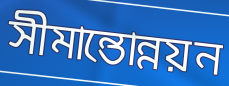
সীমান্তোন্নয়ন